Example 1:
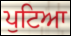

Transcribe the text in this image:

ਪੁਟਿਆ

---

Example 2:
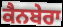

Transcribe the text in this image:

ਕੈਨਬੇਰਾ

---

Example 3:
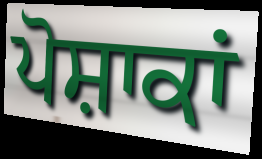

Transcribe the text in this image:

ਪੋਸ਼ਾਕਾਂ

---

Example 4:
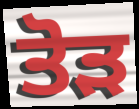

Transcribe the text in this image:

ਤੋੜ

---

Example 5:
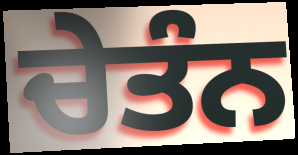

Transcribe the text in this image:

ਚੇਤੰਨ